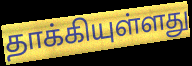
தாக்கியுள்ளது